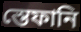
স্তেফানি